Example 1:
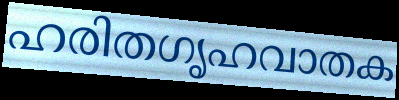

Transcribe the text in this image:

ഹരിതഗൃഹവാതക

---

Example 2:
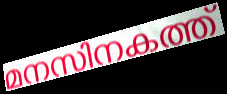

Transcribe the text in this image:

മനസിനകത്ത്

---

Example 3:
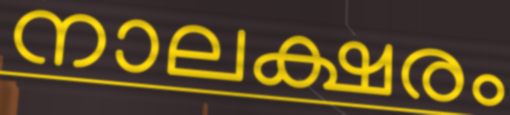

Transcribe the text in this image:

നാലക്ഷരം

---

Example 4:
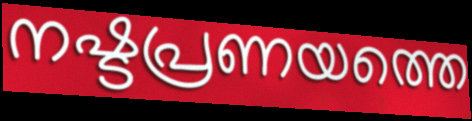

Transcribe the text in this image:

നഷ്ടപ്രണയത്തെ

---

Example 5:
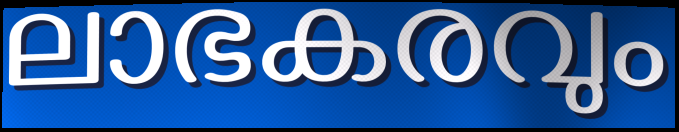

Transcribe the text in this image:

ലാഭകരവും